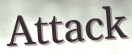
Attack